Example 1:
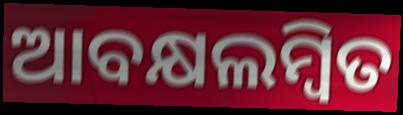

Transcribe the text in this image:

ଆବକ୍ଷଲମ୍ବିତ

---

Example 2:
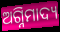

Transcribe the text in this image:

ଅଗ୍ନିମାଦ୍ୟ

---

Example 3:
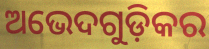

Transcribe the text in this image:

ଅଭେଦଗୁଡ଼ିକର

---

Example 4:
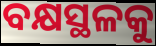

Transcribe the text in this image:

ବକ୍ଷସ୍ଥଳକୁ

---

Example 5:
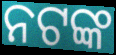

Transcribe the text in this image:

ନଟଙ୍କ